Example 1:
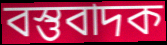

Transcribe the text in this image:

বস্তুবাদক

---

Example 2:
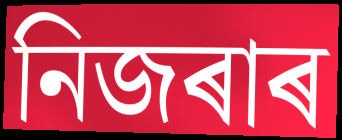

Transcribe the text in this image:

নিজৰাৰ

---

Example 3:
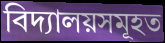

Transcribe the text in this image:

বিদ্যালয়সমূহত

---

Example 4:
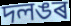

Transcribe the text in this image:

দলঙৰ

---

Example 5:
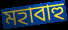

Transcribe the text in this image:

মহাবাহু